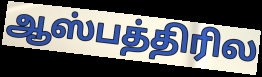
ஆஸ்பத்திரில